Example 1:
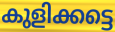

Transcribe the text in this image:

കുളിക്കട്ടെ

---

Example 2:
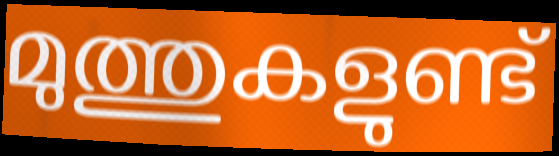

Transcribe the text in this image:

മുത്തുകളുണ്ട്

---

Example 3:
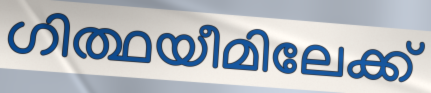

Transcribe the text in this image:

ഗിത്ഥയീമിലേക്ക്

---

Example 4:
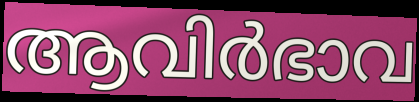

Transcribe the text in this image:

ആവിർഭാവ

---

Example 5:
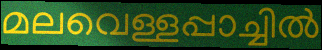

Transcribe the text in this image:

മലവെള്ളപ്പാച്ചിൽ